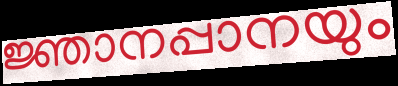
ജ്ഞാനപ്പാനയും